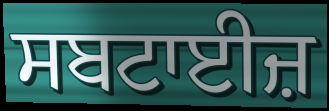
ਸਬਟਾਈਜ਼